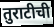
तुराटीची